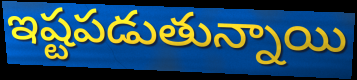
ఇష్టపడుతున్నాయి